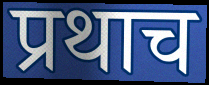
प्रथाच